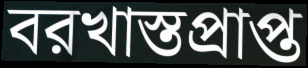
বরখাস্তপ্রাপ্ত